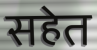
सहेत